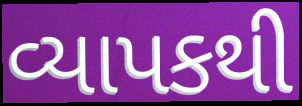
વ્યાપકથી